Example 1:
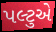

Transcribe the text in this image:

પલ્ટુએ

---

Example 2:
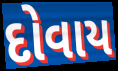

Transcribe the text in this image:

દોવાય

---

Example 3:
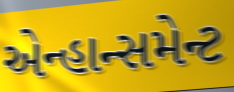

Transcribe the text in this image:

એન્હાન્સમેન્ટ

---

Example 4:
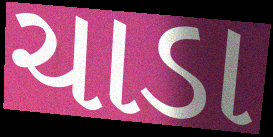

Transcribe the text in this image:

ચાડા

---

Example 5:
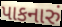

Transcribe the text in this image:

પાકનારું